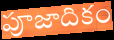
పూజాదికం